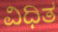
ವಿಧಿತ